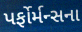
પર્ફોર્મન્સના